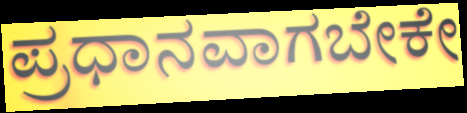
ಪ್ರಧಾನವಾಗಬೇಕೇ